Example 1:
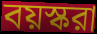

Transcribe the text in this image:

বয়স্করা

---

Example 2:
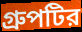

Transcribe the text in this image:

গ্রুপটির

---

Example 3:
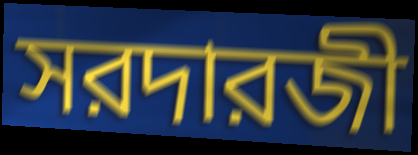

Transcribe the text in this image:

সরদারজী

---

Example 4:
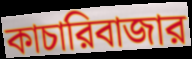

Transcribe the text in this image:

কাচারিবাজার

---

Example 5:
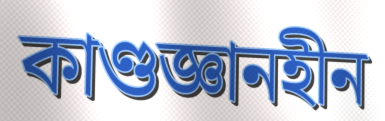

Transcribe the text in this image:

কাণ্ডজ্ঞানহীন